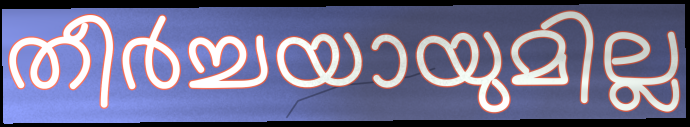
തീർച്ചയായുമില്ല